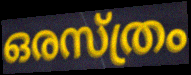
ഒരസ്ത്രം